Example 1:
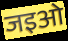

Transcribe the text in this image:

जइओ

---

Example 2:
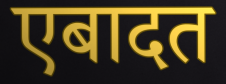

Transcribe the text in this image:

एबादत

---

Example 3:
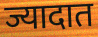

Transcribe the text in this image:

ज्यादात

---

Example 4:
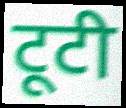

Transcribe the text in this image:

टूटी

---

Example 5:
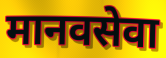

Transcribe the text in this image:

मानवसेवा